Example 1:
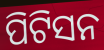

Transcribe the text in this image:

ପିଟିସନ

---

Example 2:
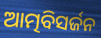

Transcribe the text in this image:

ଆତ୍ମବିସର୍ଜନ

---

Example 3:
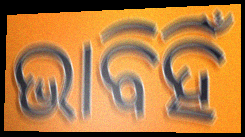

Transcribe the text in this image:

ଭାବିହିଁ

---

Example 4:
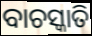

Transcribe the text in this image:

ବାଚସ୍କାତି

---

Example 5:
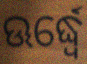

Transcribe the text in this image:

ଊର୍ଦ୍ଧ୍ୱେ